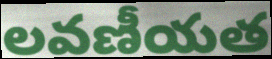
లవణీయత